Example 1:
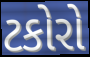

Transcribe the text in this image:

ટકોરો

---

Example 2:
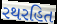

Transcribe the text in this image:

રથરહિત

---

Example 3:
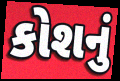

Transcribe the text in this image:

કોશનું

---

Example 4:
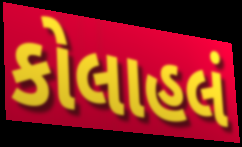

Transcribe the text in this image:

કોલાહલં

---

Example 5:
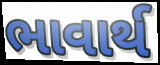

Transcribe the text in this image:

ભાવાર્થ